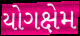
યોગક્ષેમ